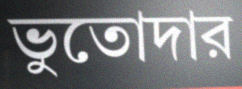
ভুতোদার